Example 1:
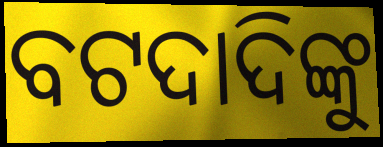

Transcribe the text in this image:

ବଟଦାଦିଙ୍କୁ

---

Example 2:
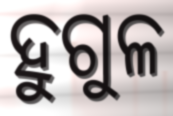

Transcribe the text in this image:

ହୁଗୁଳ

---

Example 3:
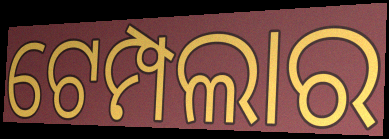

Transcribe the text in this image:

ଟେମ୍ପଲାର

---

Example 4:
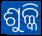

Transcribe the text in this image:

ଶୁଳ୍କି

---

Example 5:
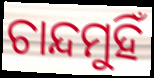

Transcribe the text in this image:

ଚାନ୍ଦମୁହିଁ